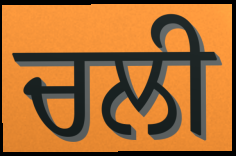
ਚਲੀ